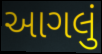
આગલું